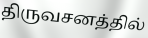
திருவசனத்தில்